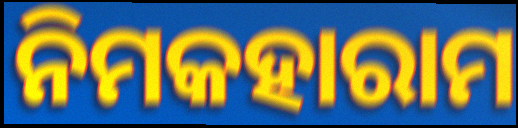
ନିମକହାରାମ